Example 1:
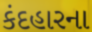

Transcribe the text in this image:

કંદહારના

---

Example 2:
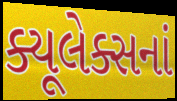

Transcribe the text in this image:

ક્યૂલેક્સનાં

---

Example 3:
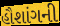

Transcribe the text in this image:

હૌશાંગની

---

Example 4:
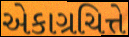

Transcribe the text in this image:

એકાગ્રચિત્તે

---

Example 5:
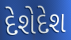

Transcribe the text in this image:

દેશેદેશ